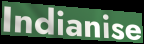
Indianise